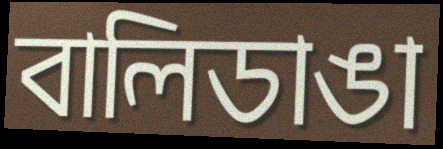
বালিডাঙা